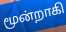
மூன்றாகி